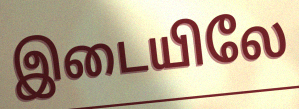
இடையிலே